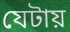
যেটায়